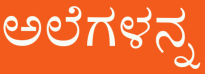
ಅಲೆಗಳನ್ನ